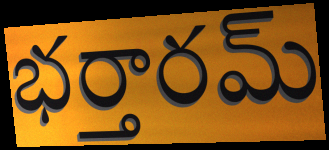
భర్తారమ్